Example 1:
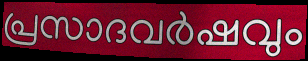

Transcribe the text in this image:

പ്രസാദവർഷവും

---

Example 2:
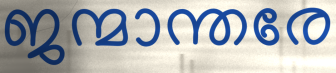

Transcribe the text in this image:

ജന്മാന്തരേ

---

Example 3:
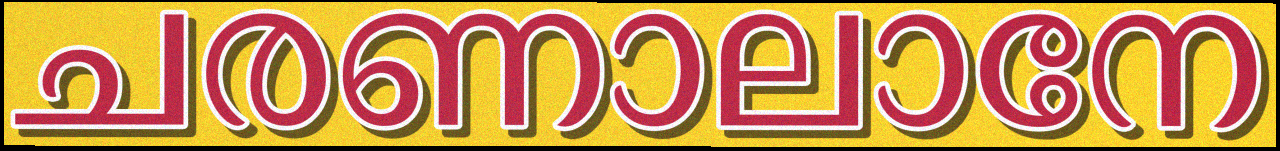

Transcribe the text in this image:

ചരണാലാനേ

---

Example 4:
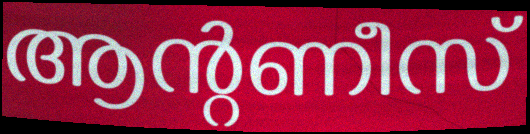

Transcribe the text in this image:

ആന്റണീസ്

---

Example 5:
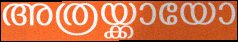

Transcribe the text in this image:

അത്രയ്ക്കായോ